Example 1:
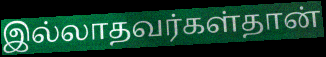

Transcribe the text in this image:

இல்லாதவர்கள்தான்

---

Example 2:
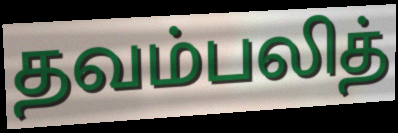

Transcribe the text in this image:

தவம்பலித்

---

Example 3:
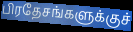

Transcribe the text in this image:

பிரதேசங்களுக்குச்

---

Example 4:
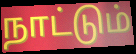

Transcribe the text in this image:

நாட்டும்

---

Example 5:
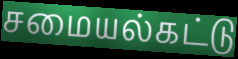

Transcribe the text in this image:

சமையல்கட்டு